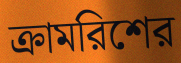
ক্রামরিশের